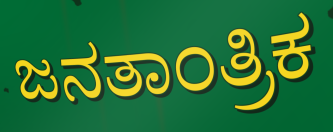
ಜನತಾಂತ್ರಿಕ